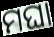
ମଘା